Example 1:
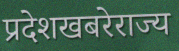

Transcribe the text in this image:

प्रदेशखबरेराज्य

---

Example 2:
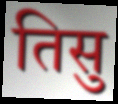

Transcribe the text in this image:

तिसु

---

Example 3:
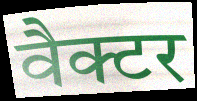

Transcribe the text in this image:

वैक्टर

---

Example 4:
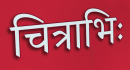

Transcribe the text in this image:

चित्राभिः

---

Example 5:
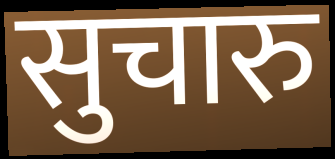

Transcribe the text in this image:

सुचारु